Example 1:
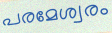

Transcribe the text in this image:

പരമേശ്വരം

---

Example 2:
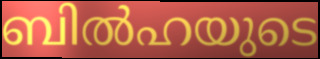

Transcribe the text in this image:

ബിൽഹയുടെ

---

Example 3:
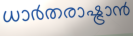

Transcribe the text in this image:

ധാർതരാഷ്ട്രാൻ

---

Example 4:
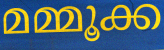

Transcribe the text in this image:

മമ്മൂക്ക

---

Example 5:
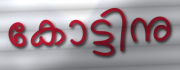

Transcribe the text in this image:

കോട്ടിനു